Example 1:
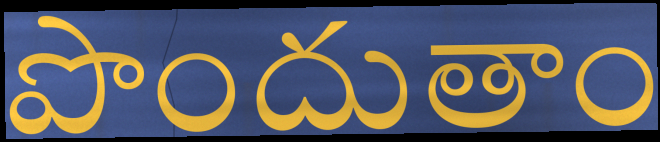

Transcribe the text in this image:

పొందుతాం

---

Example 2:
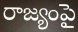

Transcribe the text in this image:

రాజ్యంపై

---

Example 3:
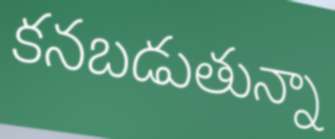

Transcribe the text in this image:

కనబడుతున్నా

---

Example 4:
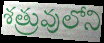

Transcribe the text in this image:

శత్రువులోని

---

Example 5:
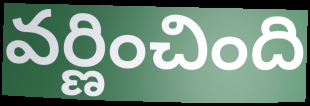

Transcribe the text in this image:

వర్ణించింది